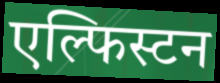
एल्फिस्टन